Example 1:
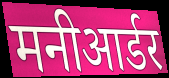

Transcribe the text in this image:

मनीआर्डर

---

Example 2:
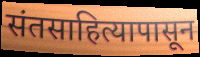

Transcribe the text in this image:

संतसाहित्यापासून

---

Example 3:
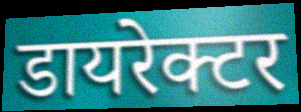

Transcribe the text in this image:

डायरेक्टर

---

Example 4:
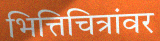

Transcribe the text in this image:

भित्तिचित्रांवर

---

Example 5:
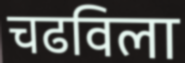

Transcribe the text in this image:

चढविला